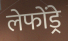
लेफोंड्रे